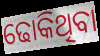
ଢୋକିଥିବା